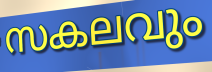
സകലവും